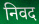
निवद